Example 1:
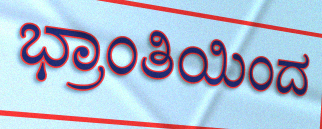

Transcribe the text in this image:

ಭ್ರಾಂತಿಯಿಂದ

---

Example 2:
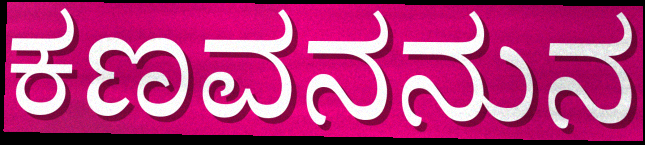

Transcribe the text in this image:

ಕಣವನನುನ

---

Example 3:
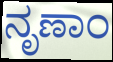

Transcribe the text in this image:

ನೃಣಾಂ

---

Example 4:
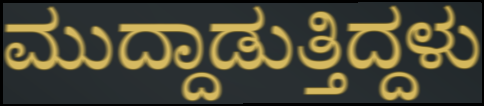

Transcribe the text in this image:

ಮುದ್ದಾಡುತ್ತಿದ್ದಳು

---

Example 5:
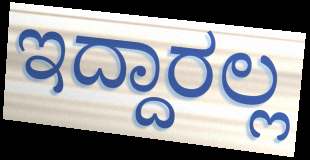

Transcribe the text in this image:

ಇದ್ದಾರಲ್ಲ